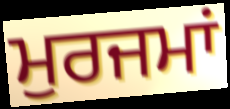
ਮੁਰਜਮਾਂ